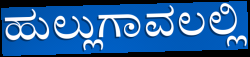
ಹುಲ್ಲುಗಾವಲಲ್ಲಿ